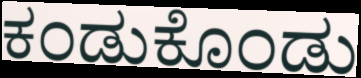
ಕಂಡುಕೊಂಡು